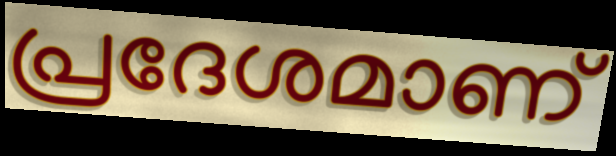
പ്രദേശമാണ്